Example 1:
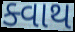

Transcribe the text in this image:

ક્વાથ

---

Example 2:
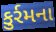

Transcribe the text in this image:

કુર્રમના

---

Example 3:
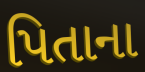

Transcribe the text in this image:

પિતાના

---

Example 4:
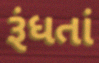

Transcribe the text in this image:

રૂંધતાં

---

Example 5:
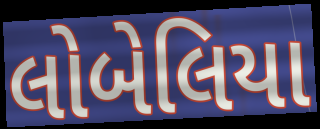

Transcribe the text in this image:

લોબેલિયા